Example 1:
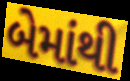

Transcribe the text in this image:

બેમાંથી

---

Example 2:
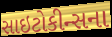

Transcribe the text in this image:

સાઇટોકીન્સના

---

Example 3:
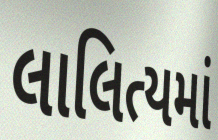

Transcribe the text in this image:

લાલિત્યમાં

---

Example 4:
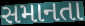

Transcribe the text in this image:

સમાનતા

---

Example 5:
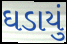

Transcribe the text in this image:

ઘડાયું